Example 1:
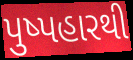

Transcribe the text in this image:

પુષ્પહારથી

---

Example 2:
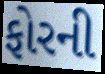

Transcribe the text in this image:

ફોરની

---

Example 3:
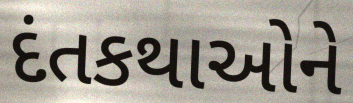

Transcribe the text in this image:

દંતકથાઓને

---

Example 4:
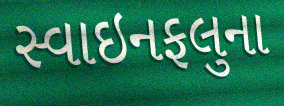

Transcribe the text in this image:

સ્વાઇનફલુના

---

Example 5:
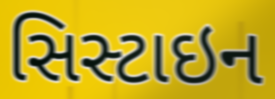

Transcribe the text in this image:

સિસ્ટાઇન